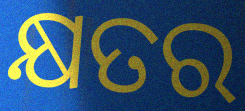
କ୍ଷତର